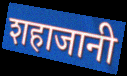
शहाजानी